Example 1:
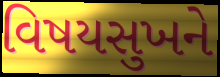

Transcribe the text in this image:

વિષયસુખને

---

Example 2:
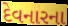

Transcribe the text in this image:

દેવનારના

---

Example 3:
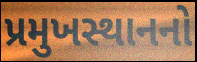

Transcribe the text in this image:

પ્રમુખસ્થાનનો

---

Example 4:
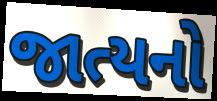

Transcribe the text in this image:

જાત્યનો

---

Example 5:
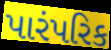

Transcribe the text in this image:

પારંપરિક